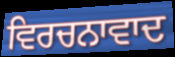
ਵਿਰਚਨਾਵਾਦ